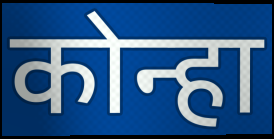
कोन्हा